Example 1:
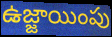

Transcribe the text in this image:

ఉజ్జాయింపు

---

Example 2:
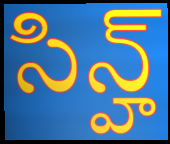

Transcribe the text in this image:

సిన్హ్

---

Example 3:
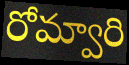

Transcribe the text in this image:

రోమ్వారి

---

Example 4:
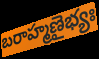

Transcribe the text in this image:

బరాహ్మణైభ్యః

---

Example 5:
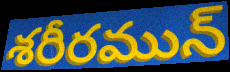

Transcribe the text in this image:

శరీరమున్